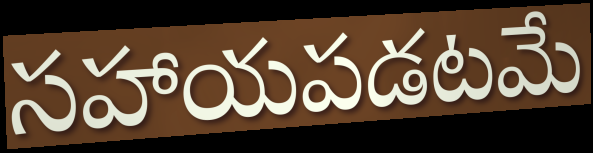
సహాయపడటమే